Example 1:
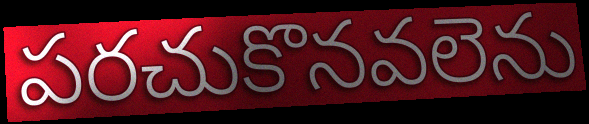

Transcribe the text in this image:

పరచుకొనవలెను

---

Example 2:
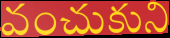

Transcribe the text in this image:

వంచుకుని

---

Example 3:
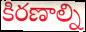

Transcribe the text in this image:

కిరణాల్ని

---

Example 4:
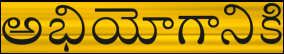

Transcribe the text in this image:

అభియోగానికి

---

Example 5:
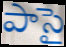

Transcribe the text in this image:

పాసై